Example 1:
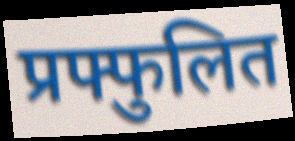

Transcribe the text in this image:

प्रफ्फुलित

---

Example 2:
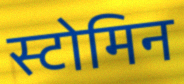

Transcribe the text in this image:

स्टोमिन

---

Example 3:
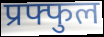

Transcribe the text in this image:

प्रफ्फुल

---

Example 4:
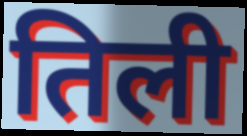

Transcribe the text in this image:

तिली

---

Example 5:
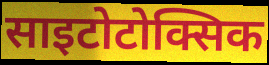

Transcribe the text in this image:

साइटोटोक्सिक